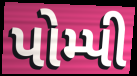
પોમ્પી